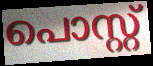
പൊസ്റ്റ്